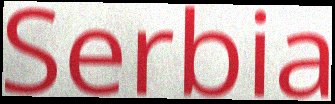
Serbia